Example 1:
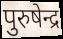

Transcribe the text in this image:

पुरुषेन्द्र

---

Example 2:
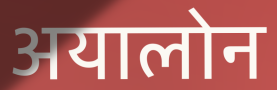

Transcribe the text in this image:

अयालोन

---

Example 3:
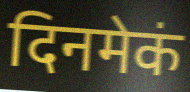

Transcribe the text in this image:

दिनमेकं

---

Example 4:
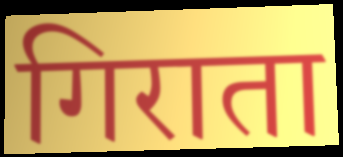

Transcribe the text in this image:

गिराता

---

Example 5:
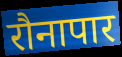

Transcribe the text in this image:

रौनापार